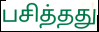
பசித்தது